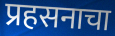
प्रहसनाचा